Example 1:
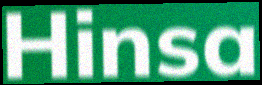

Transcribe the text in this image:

Hinsa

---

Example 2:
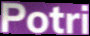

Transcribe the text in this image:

Potri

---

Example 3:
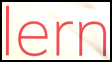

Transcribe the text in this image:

lern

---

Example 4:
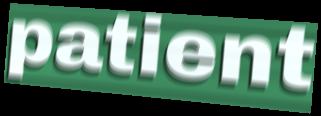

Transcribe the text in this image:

patient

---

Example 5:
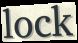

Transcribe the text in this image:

lock